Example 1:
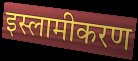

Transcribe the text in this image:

इस्लामीकरण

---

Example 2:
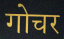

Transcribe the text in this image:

गोचर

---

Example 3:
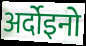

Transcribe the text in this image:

अर्दोइनो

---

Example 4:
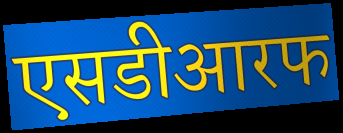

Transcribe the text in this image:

एसडीआरफ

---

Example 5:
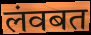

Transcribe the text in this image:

लंवबत